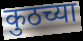
कुठच्या